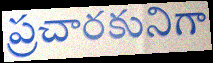
ప్రచారకునిగా